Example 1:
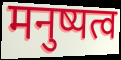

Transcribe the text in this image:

मनुष्यत्‍व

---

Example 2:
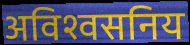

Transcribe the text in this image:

अविश्वसनिय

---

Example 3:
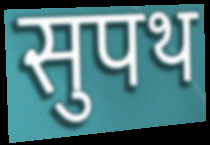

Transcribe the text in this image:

सुपथ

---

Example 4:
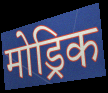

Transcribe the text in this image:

मोड्रिक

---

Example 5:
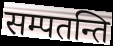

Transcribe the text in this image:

सम्पतन्ति